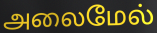
அலைமேல்